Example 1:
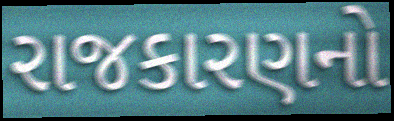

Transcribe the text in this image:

રાજકારણનો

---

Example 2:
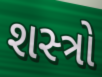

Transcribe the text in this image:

શસ્‍ત્રો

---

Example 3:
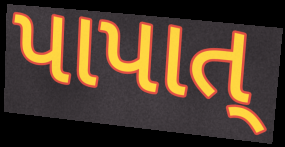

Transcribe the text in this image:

પાપાત્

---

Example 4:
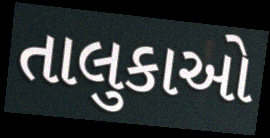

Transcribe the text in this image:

તાલુકાઓ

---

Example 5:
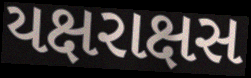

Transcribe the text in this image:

યક્ષરાક્ષસ